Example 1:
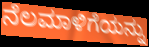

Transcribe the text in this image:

ನೆಲಮಾಳಿಗೆಯನ್ನು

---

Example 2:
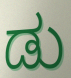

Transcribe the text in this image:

ಡು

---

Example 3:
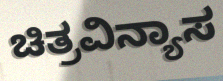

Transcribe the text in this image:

ಚಿತ್ರವಿನ್ಯಾಸ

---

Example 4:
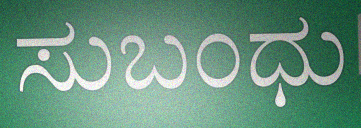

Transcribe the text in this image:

ಸುಬಂಧು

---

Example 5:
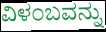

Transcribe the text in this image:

ವಿಳಂಬವನ್ನು